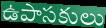
ఉపాసకులు